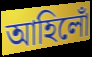
আহিলোঁ